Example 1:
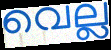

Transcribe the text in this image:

വെല്ല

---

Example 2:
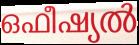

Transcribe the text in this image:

ഒഫീഷ്യൽ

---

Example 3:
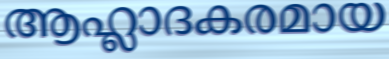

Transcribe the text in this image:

ആഹ്ലാദകരമായ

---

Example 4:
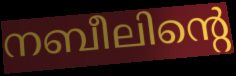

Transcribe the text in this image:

നബീലിന്റെ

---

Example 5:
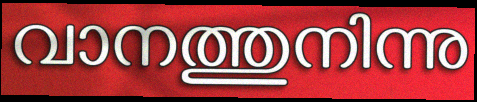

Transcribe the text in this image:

വാനത്തുനിന്നു